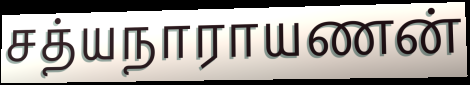
சத்யநாராயணன்